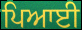
ਪਿਆਈ